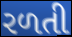
રળતી